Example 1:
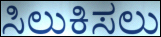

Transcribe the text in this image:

ಸಿಲುಕಿಸಲು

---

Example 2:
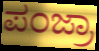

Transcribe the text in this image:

ಪಂಜ್ರಾ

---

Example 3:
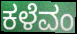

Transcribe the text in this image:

ಕಳೆವಂ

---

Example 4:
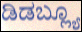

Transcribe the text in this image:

ಡಿಡಬ್ಲ್ಯೂ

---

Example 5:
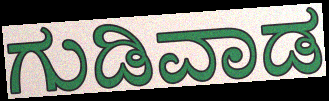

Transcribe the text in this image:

ಗುಡಿವಾಡ